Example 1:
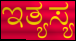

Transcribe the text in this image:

ಇತ್ಯಸ್ಯ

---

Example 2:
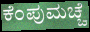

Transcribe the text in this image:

ಕೆಂಪುಮಚ್ಚೆ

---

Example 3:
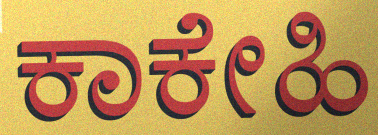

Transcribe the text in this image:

ಕಾಕೇಹಿ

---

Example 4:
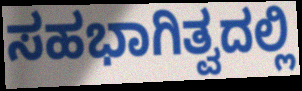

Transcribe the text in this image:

ಸಹಭಾಗಿತ್ವದಲ್ಲಿ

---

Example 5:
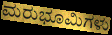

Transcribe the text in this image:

ಮರುಭೂಮಿಗಳು